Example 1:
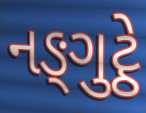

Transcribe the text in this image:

નઙ્ગુટ્ઠે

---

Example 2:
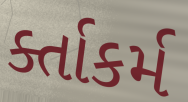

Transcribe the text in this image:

ર્ક્તાકર્મ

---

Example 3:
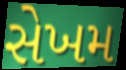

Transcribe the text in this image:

સેખમ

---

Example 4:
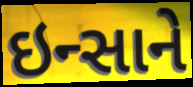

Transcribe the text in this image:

ઇન્સાને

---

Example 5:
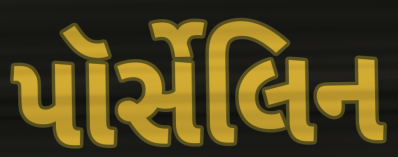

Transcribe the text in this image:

પૉર્સેલિન